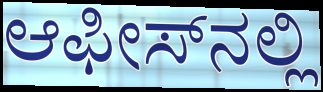
ಆಫೀಸ್‌ನಲ್ಲಿ